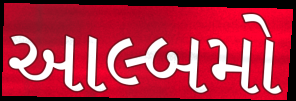
આલ્બમો